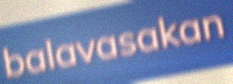
balavasakan